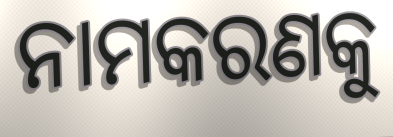
ନାମକରଣକୁ